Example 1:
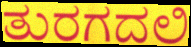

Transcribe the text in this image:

ತುರಗದಲಿ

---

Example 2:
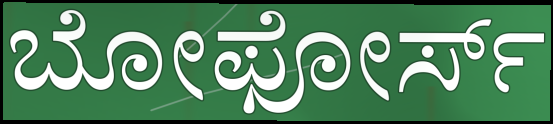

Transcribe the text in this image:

ಬೋಫೋರ್ಸ್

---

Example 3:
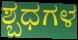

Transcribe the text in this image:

ಶ್ಬಧಗಳ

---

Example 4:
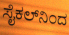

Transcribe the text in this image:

ಸೈಕಲ್‌ನಿಂದ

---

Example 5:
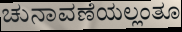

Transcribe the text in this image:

ಚುನಾವಣೆಯಲ್ಲಂತೂ